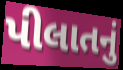
પીલાતનું